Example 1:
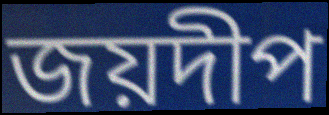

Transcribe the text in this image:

জয়দীপ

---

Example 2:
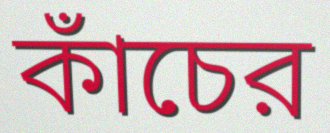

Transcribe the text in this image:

কাঁচের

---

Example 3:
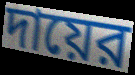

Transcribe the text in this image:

দায়ের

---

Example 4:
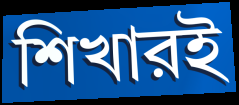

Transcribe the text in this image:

শিখারই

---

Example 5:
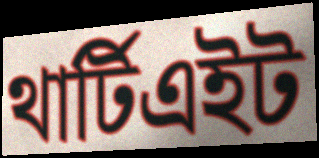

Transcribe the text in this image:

থার্টিএইট